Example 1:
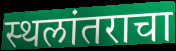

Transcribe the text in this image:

स्थलांतराचा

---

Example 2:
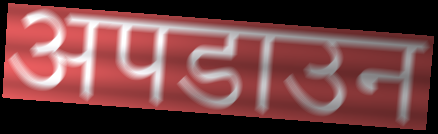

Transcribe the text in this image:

अपडाउन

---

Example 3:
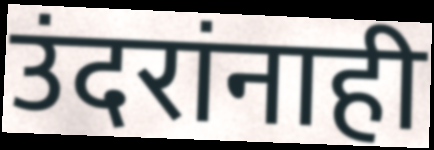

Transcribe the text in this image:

उंदरांनाही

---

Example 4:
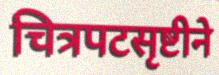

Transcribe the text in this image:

चित्रपटसृष्टीने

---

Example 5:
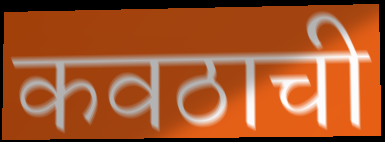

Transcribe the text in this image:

कवठाची